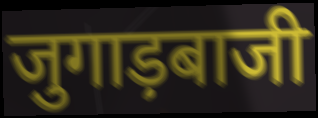
जुगाड़बाजी